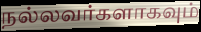
நல்லவர்களாகவும்